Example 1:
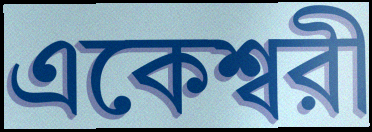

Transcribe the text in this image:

একেশ্বরী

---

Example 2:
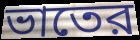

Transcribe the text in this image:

ভাতের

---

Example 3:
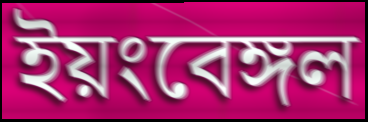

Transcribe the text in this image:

ইয়ংবেঙ্গল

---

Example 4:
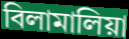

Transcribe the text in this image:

বিলামালিয়া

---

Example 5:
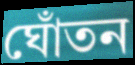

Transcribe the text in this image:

ঘোঁতন